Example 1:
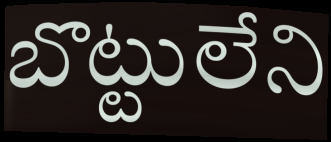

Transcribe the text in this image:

బొట్టులేని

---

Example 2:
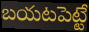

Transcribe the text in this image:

బయటపెట్టే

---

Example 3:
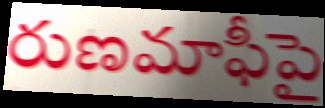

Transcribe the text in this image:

రుణమాఫీపై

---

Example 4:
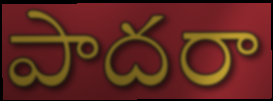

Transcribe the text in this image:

పాదరా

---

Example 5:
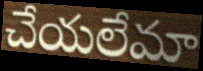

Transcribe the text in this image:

చేయలేమా